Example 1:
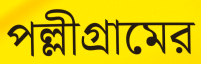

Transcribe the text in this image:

পল্লীগ্রামের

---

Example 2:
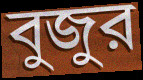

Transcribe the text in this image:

বুজুর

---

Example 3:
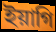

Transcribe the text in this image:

ইয়াগি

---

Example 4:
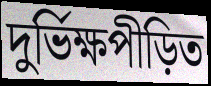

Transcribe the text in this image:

দুর্ভিক্ষপীড়িত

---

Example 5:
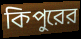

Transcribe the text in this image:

কিপুরের